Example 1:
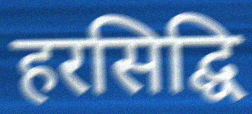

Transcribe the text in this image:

हरसिद्घि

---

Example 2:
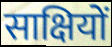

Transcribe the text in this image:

साक्षियों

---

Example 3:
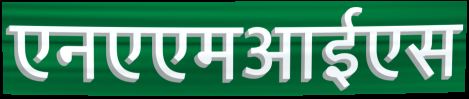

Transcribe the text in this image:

एनएएमआईएस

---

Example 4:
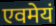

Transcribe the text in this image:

एवमेयं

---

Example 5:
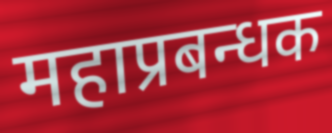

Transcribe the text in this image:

महाप्रबन्धक